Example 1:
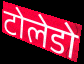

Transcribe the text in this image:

टोलेडो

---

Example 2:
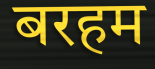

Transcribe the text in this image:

बरहम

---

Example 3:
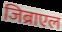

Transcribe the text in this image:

जिब्राएल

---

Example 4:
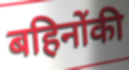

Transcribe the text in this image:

बहिनोंकी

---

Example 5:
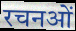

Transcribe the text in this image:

रचनओं